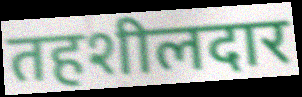
तहशीलदार